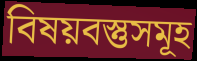
বিষয়বস্তুসমূহ